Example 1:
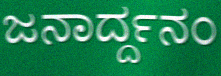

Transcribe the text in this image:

ಜನಾರ್ದ್ದನಂ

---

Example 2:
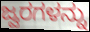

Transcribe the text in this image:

ಜ್ವರಗಳನ್ನು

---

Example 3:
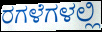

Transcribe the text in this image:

ರಗಳೆಗಳಲ್ಲಿ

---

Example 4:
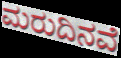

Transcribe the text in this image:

ಮರುದಿನವೆ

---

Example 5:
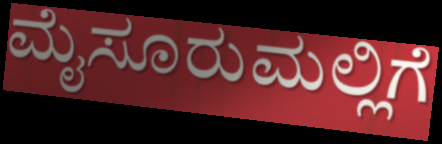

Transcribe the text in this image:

ಮೈಸೂರುಮಲ್ಲಿಗೆ